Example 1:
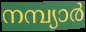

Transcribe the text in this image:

നമ്പ്യാർ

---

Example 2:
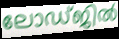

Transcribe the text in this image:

ലോഡ്ജിൽ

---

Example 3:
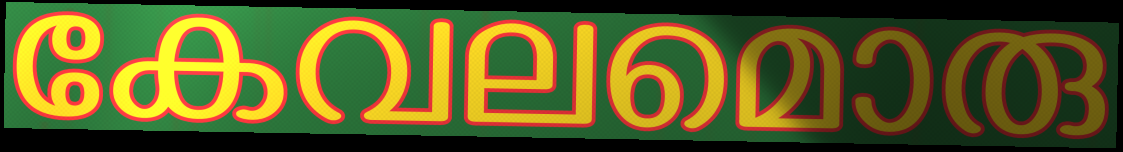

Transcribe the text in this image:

കേവലമൊരു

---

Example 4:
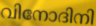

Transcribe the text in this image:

വിനോദിനി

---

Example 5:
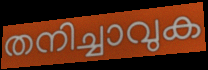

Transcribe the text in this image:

തനിച്ചാവുക